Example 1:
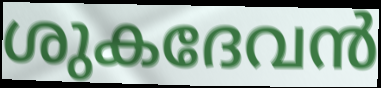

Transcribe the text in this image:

ശുകദേവൻ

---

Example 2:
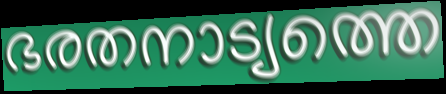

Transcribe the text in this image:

ഭരതനാട്യത്തെ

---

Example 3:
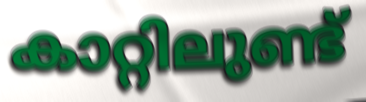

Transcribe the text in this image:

കാറ്റിലുണ്ട്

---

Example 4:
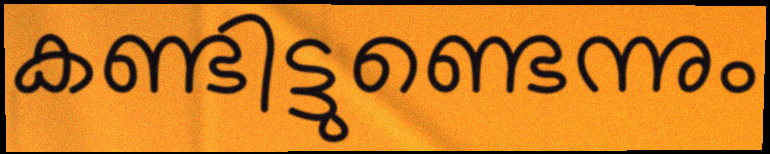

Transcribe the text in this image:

കണ്ടിട്ടുണ്ടെന്നും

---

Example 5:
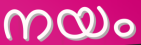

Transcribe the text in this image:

നയം